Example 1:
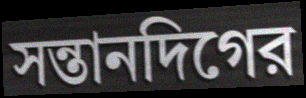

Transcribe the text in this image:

সন্তানদিগের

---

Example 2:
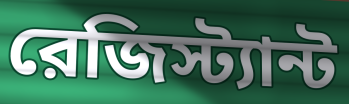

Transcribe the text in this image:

রেজিস্ট্যান্ট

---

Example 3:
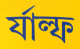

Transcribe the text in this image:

র্যাল্ফ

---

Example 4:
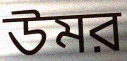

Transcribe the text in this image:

উমর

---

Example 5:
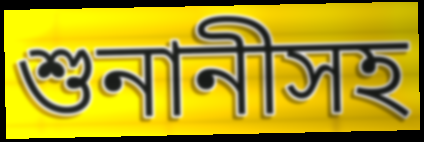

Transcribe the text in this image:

শুনানীসহ